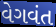
વેગવંત